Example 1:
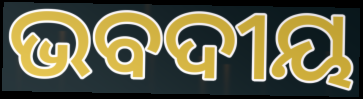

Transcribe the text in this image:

ଭବଦୀୟ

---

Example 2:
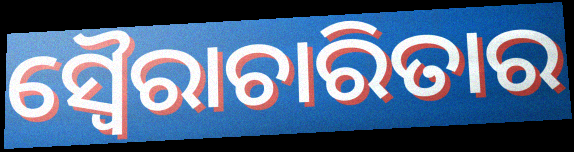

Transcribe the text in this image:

ସ୍ୱୈରାଚାରିତାର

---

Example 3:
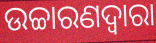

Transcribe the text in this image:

ଉଚ୍ଚାରଣଦ୍ଵାରା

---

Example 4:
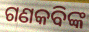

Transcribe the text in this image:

ଗଣକବିଙ୍କ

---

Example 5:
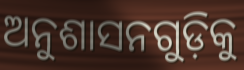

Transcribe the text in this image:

ଅନୁଶାସନଗୁଡ଼ିକୁ